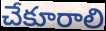
చేకూరాలి